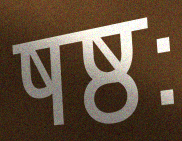
षष्ठः